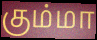
கும்மா